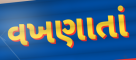
વખણાતાં